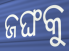
ଜଙ୍ଘକୁ